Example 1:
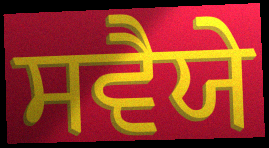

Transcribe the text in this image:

ਸਵੈਯੇ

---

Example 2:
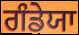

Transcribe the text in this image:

ਗੰਡੇਯਾ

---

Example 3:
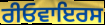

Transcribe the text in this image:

ਰੀਓਵਾਇਰਸ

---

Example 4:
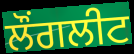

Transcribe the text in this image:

ਲੌਂਗਲੀਟ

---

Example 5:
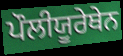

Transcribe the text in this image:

ਪੌਲੀਯੂਰੇਥੇਨ